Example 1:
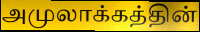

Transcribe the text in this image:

அமுலாக்கத்தின்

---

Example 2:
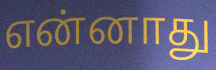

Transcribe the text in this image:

என்னாது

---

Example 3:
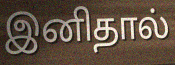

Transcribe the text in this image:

இனிதால்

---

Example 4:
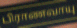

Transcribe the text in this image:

பிராணவாயு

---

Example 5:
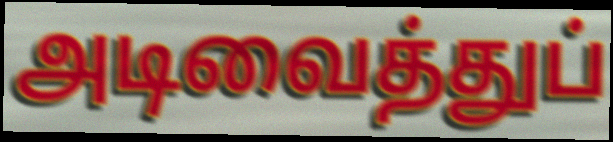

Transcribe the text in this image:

அடிவைத்துப்